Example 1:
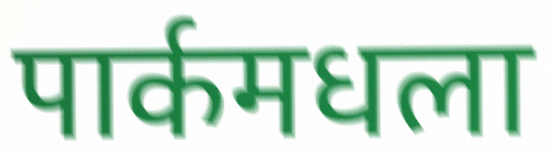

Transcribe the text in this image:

पार्कमधला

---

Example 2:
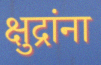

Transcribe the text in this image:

क्षुद्रांना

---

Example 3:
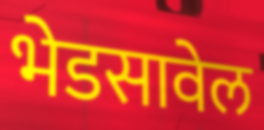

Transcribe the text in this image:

भेडसावेल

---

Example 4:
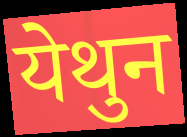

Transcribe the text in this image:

येथुन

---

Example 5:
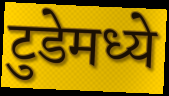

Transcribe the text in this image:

टुडेमध्ये